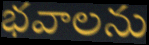
భవాలను